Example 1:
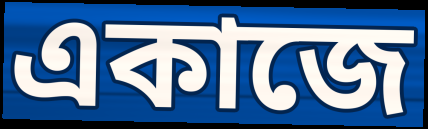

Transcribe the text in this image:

একাজে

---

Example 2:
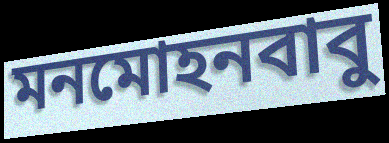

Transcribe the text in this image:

মনমোহনবাবু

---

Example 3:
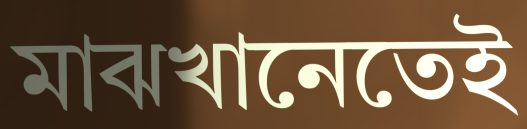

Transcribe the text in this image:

মাঝখানেতেই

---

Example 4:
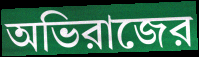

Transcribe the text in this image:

অভিরাজের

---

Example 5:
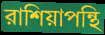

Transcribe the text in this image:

রাশিয়াপন্থি